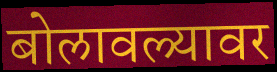
बोलावल्यावर